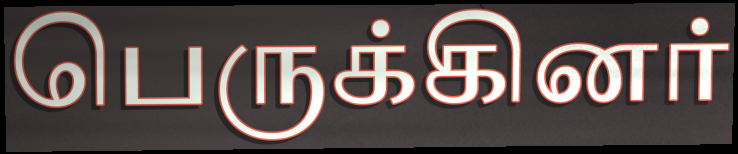
பெருக்கினர்